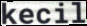
kecil